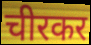
चीरकर